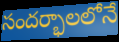
సందర్భాలలోనే